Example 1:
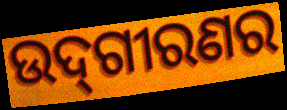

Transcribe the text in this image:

ଉଦ୍‌ଗୀରଣର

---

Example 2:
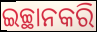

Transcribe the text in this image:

ଇଚ୍ଛାନକରି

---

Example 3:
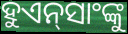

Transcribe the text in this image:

ହୁଏନ୍‌ସାଂଙ୍କୁ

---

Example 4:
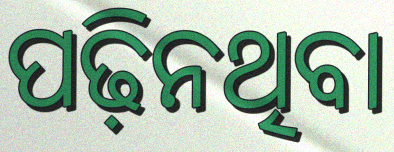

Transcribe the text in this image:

ପଢ଼ିନଥିବା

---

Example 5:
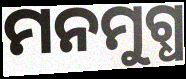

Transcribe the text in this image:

ମନମୁଗ୍ଧ